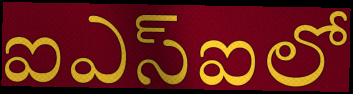
ఐఎస్ఐలో